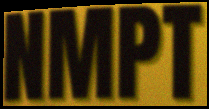
NMPT